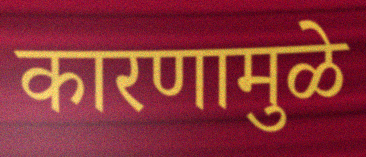
कारणामुळे